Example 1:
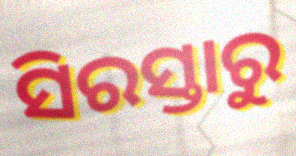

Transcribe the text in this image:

ସିରସ୍ତାରୁ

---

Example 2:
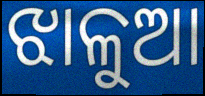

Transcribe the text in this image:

ଝାଳୁଆ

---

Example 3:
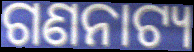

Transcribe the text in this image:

ଗଣନାଟ୍ୟ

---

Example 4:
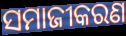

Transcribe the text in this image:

ସମାଜୀକରଣ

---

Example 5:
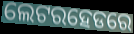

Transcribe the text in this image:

ଲେଟରହେଡରେ